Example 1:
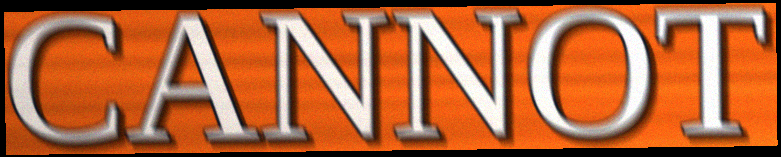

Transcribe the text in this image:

CANNOT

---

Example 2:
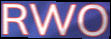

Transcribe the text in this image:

RWO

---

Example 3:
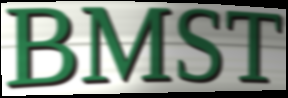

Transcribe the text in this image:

BMST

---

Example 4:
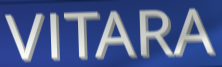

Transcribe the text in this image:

VITARA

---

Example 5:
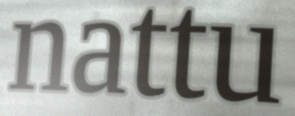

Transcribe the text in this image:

nattu